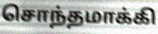
சொந்தமாக்கி